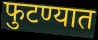
फुटण्यात